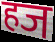
हज